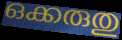
ഒക്കരുതു